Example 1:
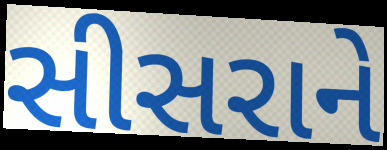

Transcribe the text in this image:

સીસરાને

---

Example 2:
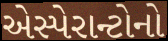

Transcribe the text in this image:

એસ્પેરાન્ટોનો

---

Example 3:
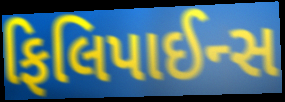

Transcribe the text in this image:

ફિલિપાઈન્સ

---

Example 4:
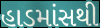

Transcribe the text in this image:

હાડમાંસથી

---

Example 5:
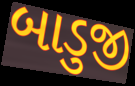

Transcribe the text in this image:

બાડુજી